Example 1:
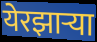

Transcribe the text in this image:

येरझार्‍या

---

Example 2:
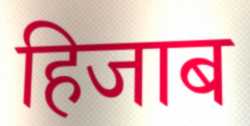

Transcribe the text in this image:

हिजाब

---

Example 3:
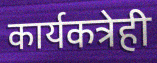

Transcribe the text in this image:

कार्यकत्रेही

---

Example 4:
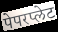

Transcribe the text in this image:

पेपरप्लेट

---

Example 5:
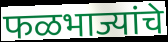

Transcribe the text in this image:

फळभाज्यांचे